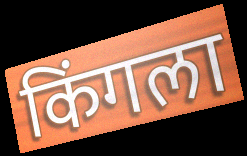
किंगला